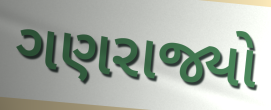
ગણરાજ્યો